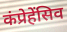
कंप्रेहेंसिव